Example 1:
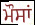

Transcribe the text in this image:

ਮੌਸਾਂ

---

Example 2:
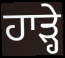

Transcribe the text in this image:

ਹਾੜ੍ਹੇ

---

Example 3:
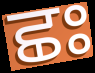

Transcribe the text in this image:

ਛਃ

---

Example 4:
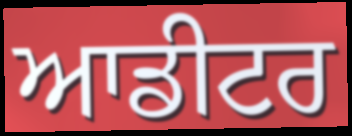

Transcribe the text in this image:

ਆਡੀਟਰ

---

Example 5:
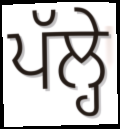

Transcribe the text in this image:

ਪੱਲ੍ਹੇ